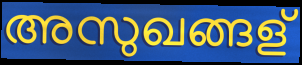
അസുഖങ്ങള്